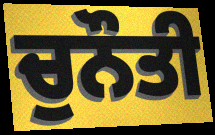
ਚੁਨੌਤੀ